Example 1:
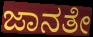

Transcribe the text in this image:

ಜಾನತೇ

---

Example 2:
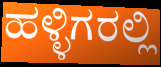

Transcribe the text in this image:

ಹಳ್ಳಿಗರಲ್ಲಿ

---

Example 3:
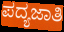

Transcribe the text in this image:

ಪದ್ಯಜಾತಿ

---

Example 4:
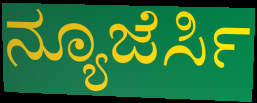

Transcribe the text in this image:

ನ್ಯೂಜೆರ್ಸಿ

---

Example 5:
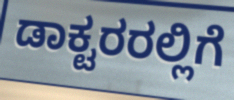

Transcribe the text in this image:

ಡಾಕ್ಟರರಲ್ಲಿಗೆ